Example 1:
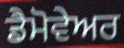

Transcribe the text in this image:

ਡੈਮੋਵੇਅਰ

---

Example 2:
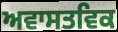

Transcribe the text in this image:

ਅਵਾਸਤਵਿਕ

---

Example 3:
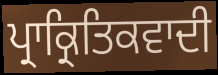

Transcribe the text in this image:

ਪ੍ਰਾਕ੍ਰਿਤਿਕਵਾਦੀ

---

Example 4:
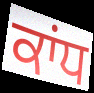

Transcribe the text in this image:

ਕਾਂਧ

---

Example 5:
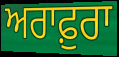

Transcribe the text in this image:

ਅਰਾਫ਼ੁਰਾ